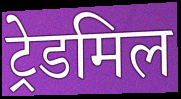
ट्रेडमिल